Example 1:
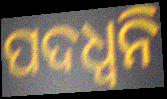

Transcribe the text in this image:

ପଦଧ୍ୱନି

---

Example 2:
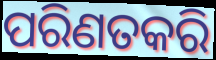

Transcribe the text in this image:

ପରିଣତକରି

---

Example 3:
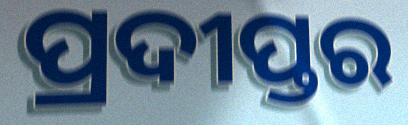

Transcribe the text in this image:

ପ୍ରଦୀପ୍ତର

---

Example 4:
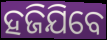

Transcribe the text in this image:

ହଜିଯିବେ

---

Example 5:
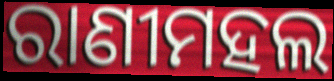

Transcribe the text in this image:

ରାଣୀମହଲ